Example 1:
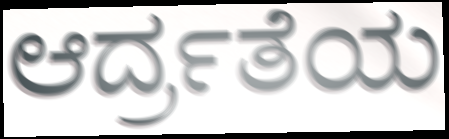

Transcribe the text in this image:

ಆರ್ದ್ರತೆಯ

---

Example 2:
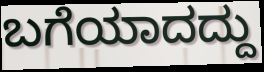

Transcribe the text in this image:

ಬಗೆಯಾದದ್ದು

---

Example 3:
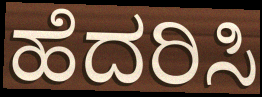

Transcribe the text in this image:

ಹೆದರಿಸಿ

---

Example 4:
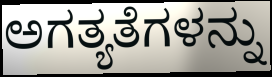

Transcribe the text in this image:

ಅಗತ್ಯತೆಗಳನ್ನು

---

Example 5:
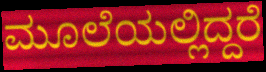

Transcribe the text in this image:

ಮೂಲೆಯಲ್ಲಿದ್ದರೆ